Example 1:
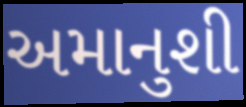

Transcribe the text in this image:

અમાનુશી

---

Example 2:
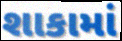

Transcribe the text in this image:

શાકામાં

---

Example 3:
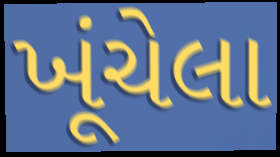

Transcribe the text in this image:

ખૂંચેલા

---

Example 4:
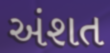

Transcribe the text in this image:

અંશત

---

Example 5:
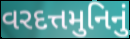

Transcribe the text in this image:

વરદત્તમુનિનું